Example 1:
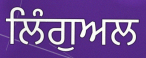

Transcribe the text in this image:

ਲਿੰਗੁਅਲ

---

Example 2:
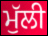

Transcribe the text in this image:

ਮੁੱਲੀ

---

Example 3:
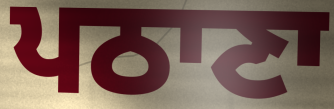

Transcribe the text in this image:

ਪਠਾਣਾ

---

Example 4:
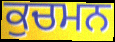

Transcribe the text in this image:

ਕੁਚਮਨ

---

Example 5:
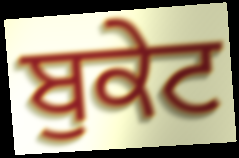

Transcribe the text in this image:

ਬੁਕੇਟ